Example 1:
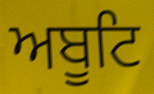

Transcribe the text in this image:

ਅਬੂਟਿ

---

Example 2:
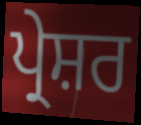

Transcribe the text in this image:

ਪ੍ਰੇਸ਼ਰ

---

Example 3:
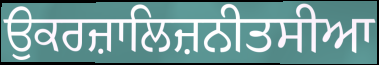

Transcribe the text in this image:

ਉਕਰਜ਼ਾਲਿਜ਼ਨੀਤਸੀਆ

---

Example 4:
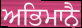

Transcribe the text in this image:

ਅਭਿਮਾਨੈ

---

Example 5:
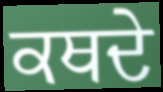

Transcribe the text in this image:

ਕਥਦੇ